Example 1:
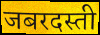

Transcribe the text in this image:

जबरदस्ती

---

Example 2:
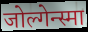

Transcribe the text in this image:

जोल्गेन्स्मा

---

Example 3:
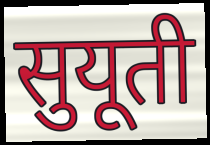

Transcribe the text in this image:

सुयूती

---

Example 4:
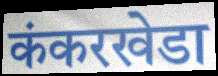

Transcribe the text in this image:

कंकरखेडा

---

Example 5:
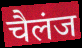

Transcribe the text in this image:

चैलंज